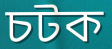
চটক